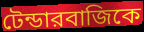
টেন্ডারবাজিকে